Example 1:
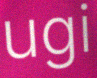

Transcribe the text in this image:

ugi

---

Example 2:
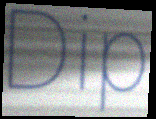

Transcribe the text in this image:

Dip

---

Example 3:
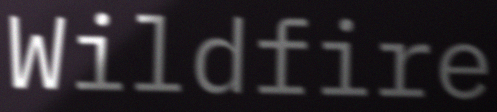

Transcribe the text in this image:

Wildfire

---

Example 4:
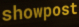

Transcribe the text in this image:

showpost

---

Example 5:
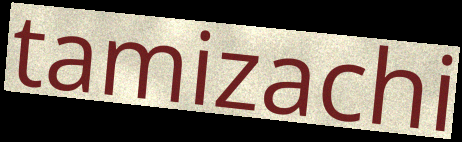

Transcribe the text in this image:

tamizachi